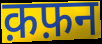
क़फ़न